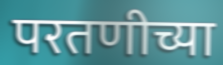
परतणीच्या